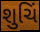
શુચિં